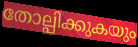
തോല്പിക്കുകയും